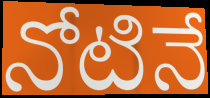
నోటినే